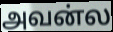
அவன்ல